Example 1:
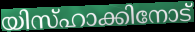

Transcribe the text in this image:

യിസ്ഹാക്കിനോട്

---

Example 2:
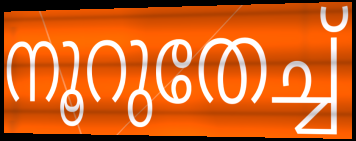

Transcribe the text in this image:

നൂറുതേച്ച്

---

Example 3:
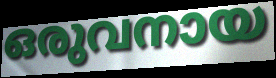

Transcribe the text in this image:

ഒരുവനായ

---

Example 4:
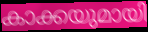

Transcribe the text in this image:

കാക്കയുമായി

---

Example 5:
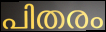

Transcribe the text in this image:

പിതരം